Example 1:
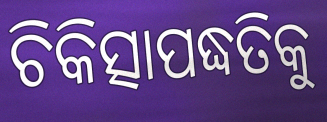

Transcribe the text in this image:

ଚିକିତ୍ସାପଦ୍ଧତିକୁ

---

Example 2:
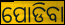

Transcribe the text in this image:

ପୋଡିବା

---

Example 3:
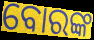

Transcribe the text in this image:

ବୋରଙ୍କ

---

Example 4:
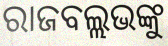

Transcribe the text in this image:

ରାଜବଲ୍ଲଭଙ୍କୁ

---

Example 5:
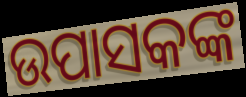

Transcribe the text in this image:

ଉପାସକଙ୍କ